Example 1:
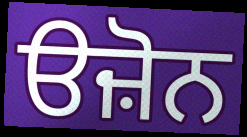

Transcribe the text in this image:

ੳਜ਼ੋਨ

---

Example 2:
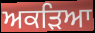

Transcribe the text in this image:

ਅਕੜਿਆ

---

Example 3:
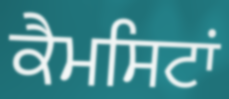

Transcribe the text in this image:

ਕੈਮਸਿਟਾਂ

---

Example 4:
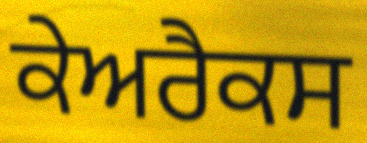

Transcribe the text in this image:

ਕੇਅਰੈਕਸ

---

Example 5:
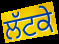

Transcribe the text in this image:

ਲੱਟਕੇ